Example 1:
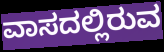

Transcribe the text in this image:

ವಾಸದಲ್ಲಿರುವ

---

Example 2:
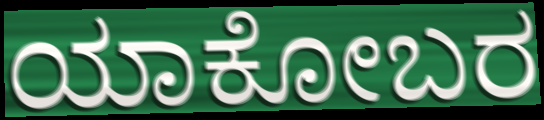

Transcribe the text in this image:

ಯಾಕೋಬರ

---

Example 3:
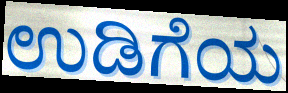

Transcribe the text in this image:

ಉಡಿಗೆಯ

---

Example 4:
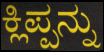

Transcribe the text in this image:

ಕ್ಲಿಪ್ಪನ್ನು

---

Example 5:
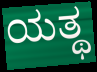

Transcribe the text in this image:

ಯತ್ಥ